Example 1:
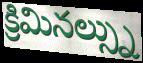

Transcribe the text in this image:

క్రిమినల్స్ను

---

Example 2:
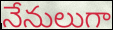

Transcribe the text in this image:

నేనులుగా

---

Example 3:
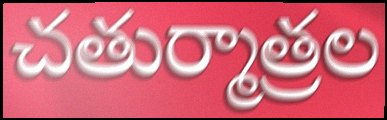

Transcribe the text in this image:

చతుర్మాత్రల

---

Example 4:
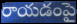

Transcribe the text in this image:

రాయడంపై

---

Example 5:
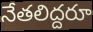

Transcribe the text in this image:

నేతలిద్దరూ